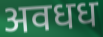
अवधध